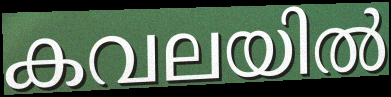
കവലയിൽ